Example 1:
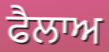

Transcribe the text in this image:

ਫੈਲਾਅ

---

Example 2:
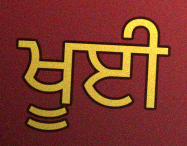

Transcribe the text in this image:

ਖੂਈ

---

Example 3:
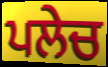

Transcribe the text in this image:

ਪਲੇਚ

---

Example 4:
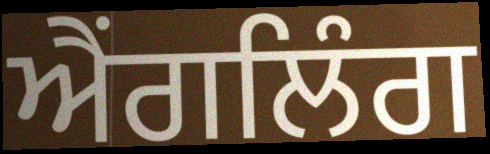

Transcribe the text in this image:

ਐਂਗਲਿੰਗ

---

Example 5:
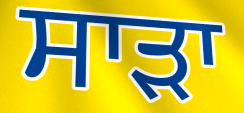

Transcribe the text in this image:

ਸਾੜਾ